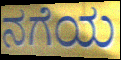
ನಗೆಯ